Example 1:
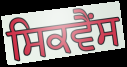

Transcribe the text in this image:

ਸਿਕਵੈਂਸ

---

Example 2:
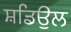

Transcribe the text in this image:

ਸ਼ਡਿਉਲ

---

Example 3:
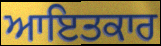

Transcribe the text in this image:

ਆਇਤਕਾਰ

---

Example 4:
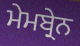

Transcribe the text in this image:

ਮੇਮਬ੍ਰੇਨ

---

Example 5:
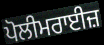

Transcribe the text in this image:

ਪੋਲੀਮਰਾਈਜ਼